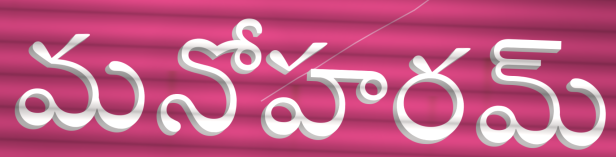
మనోహరమ్